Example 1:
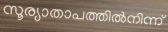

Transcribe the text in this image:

സൂര്യാതാപത്തിൽനിന്ന്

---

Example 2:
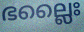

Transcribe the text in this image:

ഭല്ലൈഃ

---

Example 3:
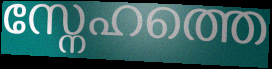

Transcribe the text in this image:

സ്നേഹത്തെ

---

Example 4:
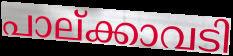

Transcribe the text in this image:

പാല്ക്കാവടി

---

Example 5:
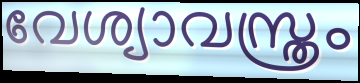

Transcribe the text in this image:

വേശ്യാവസ്ത്രം